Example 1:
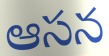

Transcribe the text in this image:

ఆసన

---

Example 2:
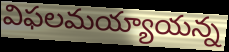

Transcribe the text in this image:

విఫలమయ్యాయన్న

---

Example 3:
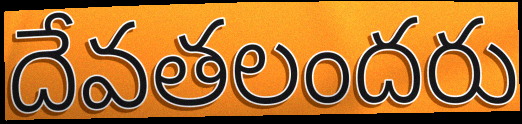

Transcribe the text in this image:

దేవతలందరు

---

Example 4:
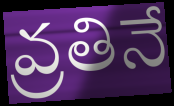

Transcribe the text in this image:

వ్రతినే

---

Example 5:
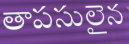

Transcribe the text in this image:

తాపసులైన